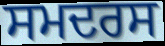
ਸਮਦਰਸ